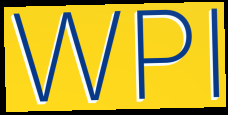
WPI